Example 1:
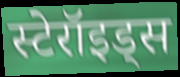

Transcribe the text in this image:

स्टेरॉइड्स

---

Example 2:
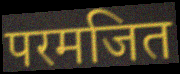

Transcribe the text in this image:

परमजित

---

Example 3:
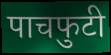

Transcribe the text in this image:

पाचफुटी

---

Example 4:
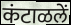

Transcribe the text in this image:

कंटाळलें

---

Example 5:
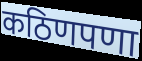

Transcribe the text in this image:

कठिणपणा